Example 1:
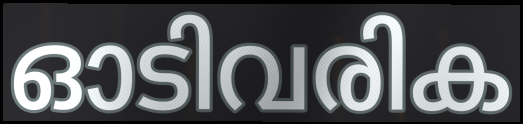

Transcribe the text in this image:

ഓടിവരിക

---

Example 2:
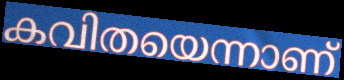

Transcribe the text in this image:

കവിതയെന്നാണ്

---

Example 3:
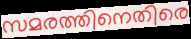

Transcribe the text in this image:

സമരത്തിനെതിരെ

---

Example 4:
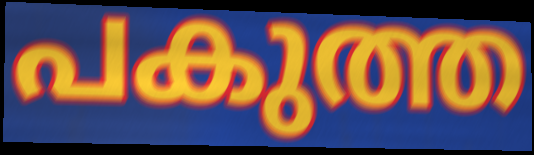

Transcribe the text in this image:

പകുത്ത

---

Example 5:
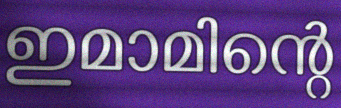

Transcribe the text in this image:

ഇമാമിന്റെ